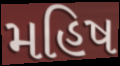
મહિષ